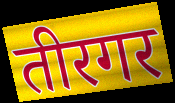
तीरगर